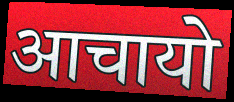
आचायो